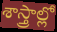
శాస్త్రాల్లో